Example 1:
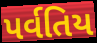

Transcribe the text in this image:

પર્વતિય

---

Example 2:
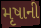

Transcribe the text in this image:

મૃષાની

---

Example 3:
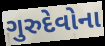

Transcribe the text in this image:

ગુરુદેવોના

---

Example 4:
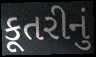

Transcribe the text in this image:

કૂતરીનું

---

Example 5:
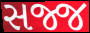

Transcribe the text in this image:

સજ્જ